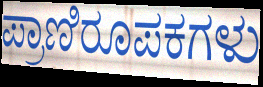
ಪ್ರಾಣಿರೂಪಕಗಳು